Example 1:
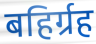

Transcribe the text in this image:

बहिर्ग्रह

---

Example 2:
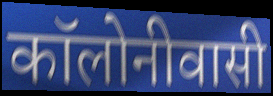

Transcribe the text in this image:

कॉलोनीवासी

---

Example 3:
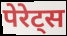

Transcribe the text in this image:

पेरेट्स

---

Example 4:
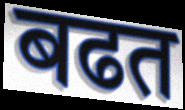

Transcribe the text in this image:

बढत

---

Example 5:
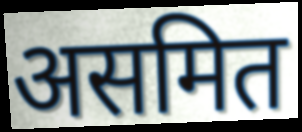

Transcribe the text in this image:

असमित